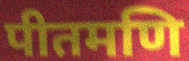
पीतमणि